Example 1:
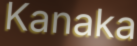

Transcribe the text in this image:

Kanaka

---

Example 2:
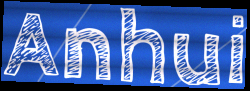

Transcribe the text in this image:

Anhui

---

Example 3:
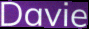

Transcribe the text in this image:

Davie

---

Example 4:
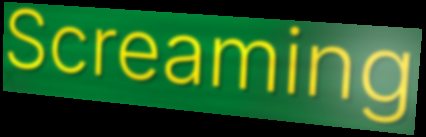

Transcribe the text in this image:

Screaming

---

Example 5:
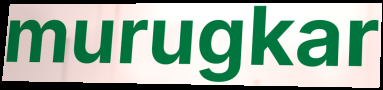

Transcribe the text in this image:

murugkar